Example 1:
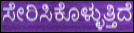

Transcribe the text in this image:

ಸೇರಿಸಿಕೊಳ್ಳುತ್ತಿದೆ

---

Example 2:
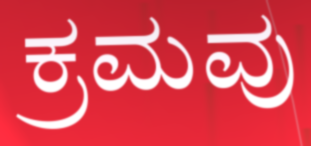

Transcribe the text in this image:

ಕ್ರಮವು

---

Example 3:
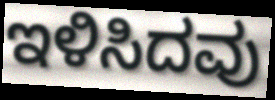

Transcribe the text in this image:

ಇಳಿಸಿದವು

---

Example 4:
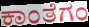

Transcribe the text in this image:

ಕಾಂತೆಗಂ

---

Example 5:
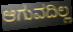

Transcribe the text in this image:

ಆಗುವದಿಲ್ಲ